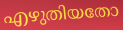
എഴുതിയതോ